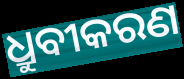
ଧ୍ରୁବୀକରଣ